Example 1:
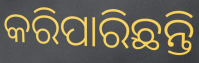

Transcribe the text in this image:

କରିପାରିଛନ୍ତି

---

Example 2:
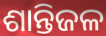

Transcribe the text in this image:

ଶାନ୍ତିଜଳ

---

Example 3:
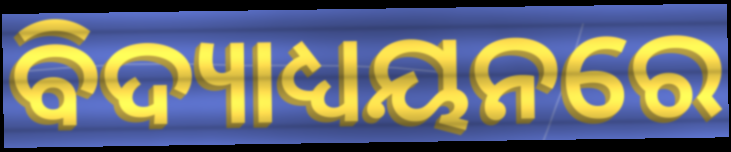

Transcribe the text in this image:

ବିଦ୍ୟାଧ୍ୟୟନରେ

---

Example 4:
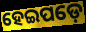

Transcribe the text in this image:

ହେଇପଡ଼େ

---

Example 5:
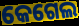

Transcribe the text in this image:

କେଗେଲ